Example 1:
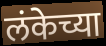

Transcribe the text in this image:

लंकेच्या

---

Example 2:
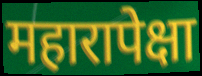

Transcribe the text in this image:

महारापेक्षा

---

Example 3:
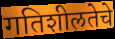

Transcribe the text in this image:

गतिशीलतेचे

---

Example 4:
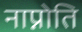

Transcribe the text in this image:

नाप्नोति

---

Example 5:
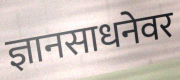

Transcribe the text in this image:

ज्ञानसाधनेवर